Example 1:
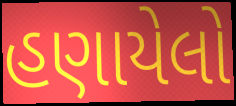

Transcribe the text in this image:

હણાયેલો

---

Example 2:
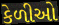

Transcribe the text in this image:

કેળીઓ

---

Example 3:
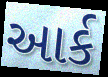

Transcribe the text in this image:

આર્ક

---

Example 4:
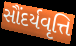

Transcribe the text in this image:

સૌંદર્યવૃત્તિ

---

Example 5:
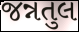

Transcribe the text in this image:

જન્નતુલ